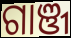
ଗାଞ୍ଜ